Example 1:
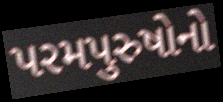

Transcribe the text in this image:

પરમપુરુષોનો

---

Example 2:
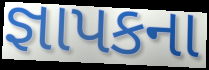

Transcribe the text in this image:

જ્ઞાપકના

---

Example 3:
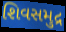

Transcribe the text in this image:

શિવસમુદ્ર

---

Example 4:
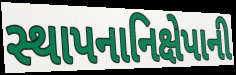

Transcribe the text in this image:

સ્થાપનાનિક્ષેપાની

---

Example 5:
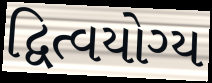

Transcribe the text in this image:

દ્વિત્વયોગ્ય